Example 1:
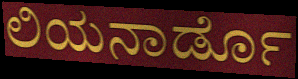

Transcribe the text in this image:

ಲಿಯನಾರ್ಡೊ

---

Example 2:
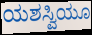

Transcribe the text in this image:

ಯಶಸ್ವಿಯೂ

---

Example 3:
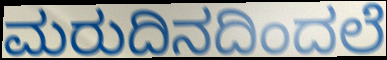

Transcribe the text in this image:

ಮರುದಿನದಿಂದಲೆ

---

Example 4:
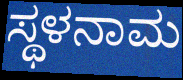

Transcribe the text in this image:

ಸ್ಥಳನಾಮ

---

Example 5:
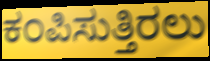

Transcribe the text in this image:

ಕಂಪಿಸುತ್ತಿರಲು